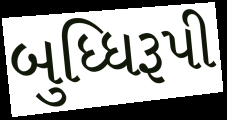
બુધ્ધિરૂપી